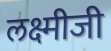
लक्ष्मीजी